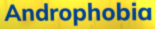
Androphobia